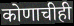
कोणाचीही